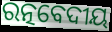
ରତ୍ନବେଦୀୟ